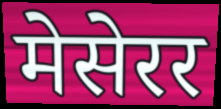
मेसेरर